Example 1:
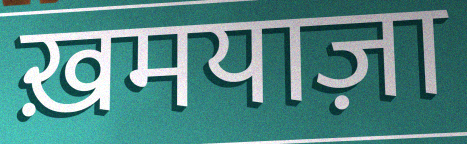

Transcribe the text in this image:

ख़मयाज़ा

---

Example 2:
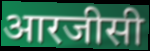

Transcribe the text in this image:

आरजीसी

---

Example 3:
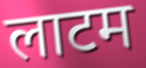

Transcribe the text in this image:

लाटम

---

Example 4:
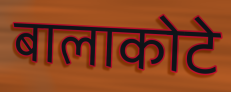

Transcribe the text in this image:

बालाकोटे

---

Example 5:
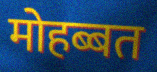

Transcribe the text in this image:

मोहब्‍बत